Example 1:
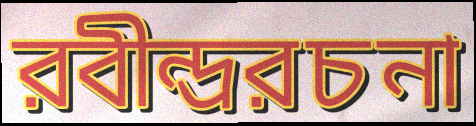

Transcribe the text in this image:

রবীন্দ্ররচনা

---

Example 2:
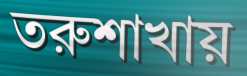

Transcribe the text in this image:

তরুশাখায়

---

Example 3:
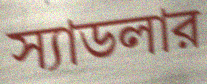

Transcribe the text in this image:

স্যাডলার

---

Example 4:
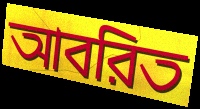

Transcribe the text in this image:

আবরিত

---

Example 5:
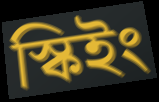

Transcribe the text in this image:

স্কিইং